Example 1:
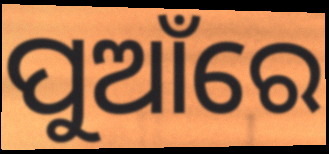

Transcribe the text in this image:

ପୁଆଁରେ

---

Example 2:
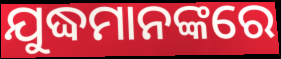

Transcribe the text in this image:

ଯୁଦ୍ଧମାନଙ୍କରେ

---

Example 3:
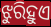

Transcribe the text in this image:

ଝୁରିହୁଏ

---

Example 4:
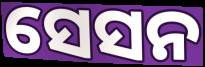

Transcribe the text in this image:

ସେସନ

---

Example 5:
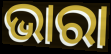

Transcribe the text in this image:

ଭାରା